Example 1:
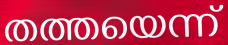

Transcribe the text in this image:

തത്തയെന്ന്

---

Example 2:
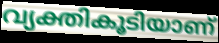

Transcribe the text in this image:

വ്യക്തികൂടിയാണ്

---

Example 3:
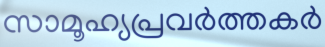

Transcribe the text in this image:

സാമൂഹ്യപ്രവർത്തകർ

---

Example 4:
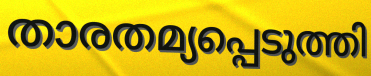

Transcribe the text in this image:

താരതമ്യപ്പെടുത്തി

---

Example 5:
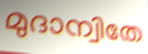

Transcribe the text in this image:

മുദാന്വിതേ